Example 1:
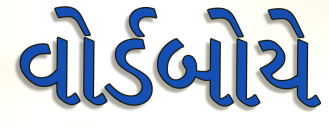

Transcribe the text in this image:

વોર્ડબોયે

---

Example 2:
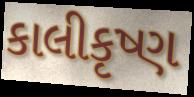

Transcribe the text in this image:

કાલીકૃષ્ણ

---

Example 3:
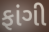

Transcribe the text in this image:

ફાંગી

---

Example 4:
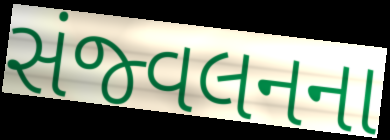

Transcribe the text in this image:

સંજ્વલનના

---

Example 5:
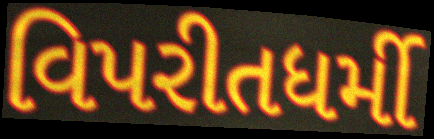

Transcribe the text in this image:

વિપરીતધર્મી